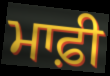
ਮਾਫ਼ੀ